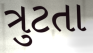
ત્રુટતા